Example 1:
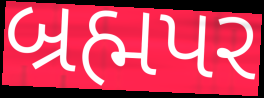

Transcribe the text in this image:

બ્રહ્મપર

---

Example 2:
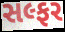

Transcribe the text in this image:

સલ્ફર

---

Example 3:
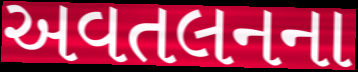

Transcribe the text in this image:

અવતલનના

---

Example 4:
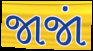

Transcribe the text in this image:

જાજાં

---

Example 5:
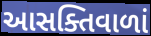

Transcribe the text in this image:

આસક્તિવાળાં